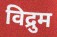
विद्रुम